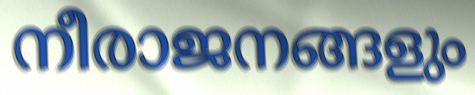
നീരാജനങ്ങളും